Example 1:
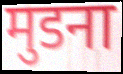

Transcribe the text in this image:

मुडना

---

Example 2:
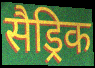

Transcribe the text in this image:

सैड्रिक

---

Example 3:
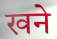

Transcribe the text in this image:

खने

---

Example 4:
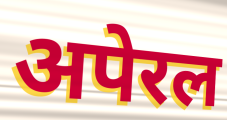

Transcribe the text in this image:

अपेरल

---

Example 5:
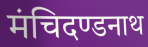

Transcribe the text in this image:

मंचिदण्डनाथ